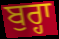
ਬੁਰ੍ਹਾ